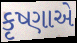
કૃષ્ણાએ